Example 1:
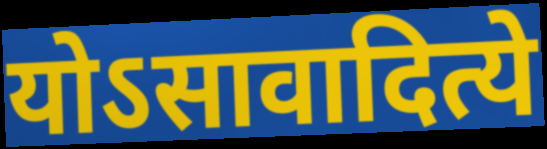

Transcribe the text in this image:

योऽसावादित्ये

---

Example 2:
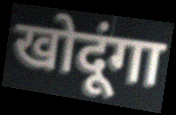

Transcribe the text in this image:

खोदूंगा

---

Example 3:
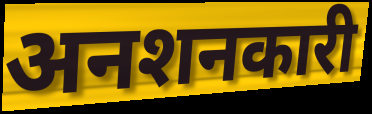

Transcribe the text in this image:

अनशनकारी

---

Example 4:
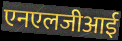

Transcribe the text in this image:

एनएलजीआई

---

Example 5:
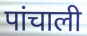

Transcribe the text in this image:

पांचाली